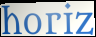
horiz